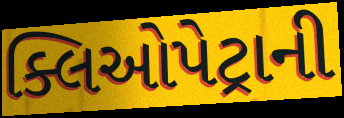
ક્લિઓપેટ્રાની